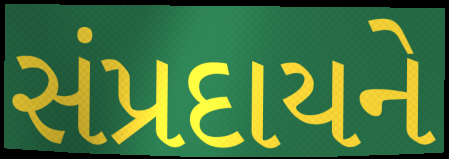
સંપ્રદાયને